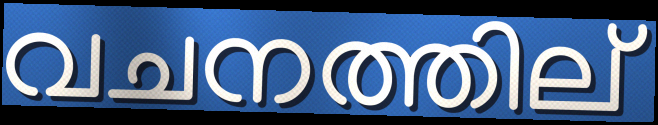
വചനത്തില്